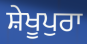
ਸ਼ੇਖੂਪੁਰਾ